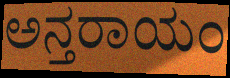
ಅನ್ತರಾಯಂ